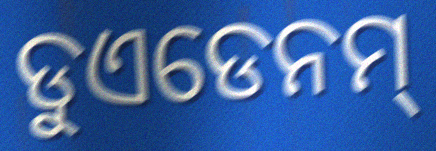
ଡୁଏଡେନମ୍